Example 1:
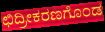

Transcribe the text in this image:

ಛಿದ್ರೀಕರಣಗೊಂಡ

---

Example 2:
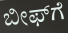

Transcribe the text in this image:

ಬೀಫ್‌ಗೆ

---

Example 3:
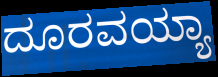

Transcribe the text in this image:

ದೂರವಯ್ಯಾ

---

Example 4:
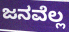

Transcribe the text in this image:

ಜನವೆಲ್ಲ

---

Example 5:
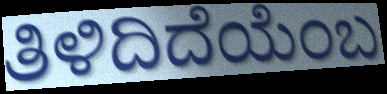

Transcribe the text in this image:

ತಿಳಿದಿದೆಯೆಂಬ